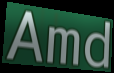
Amd